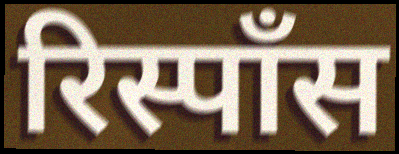
रिस्पॉंस